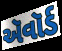
ઍવૉર્ડ